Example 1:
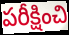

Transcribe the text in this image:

పరీక్షించి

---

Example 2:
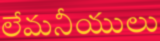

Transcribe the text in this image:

లేమనీయులు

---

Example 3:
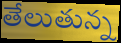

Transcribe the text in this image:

తేలుతున్న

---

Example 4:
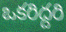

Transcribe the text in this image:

ఒకరిద్దరి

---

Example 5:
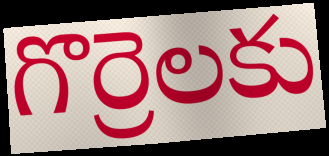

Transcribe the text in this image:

గొర్రెలకు